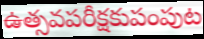
ఉత్సవపరీక్షకుపంపుట